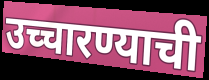
उच्चारण्याची